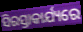
ସିରସ୍ତାକାର୍ଯ୍ୟରେ